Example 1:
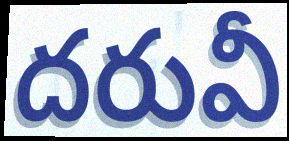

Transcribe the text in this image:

దరువీ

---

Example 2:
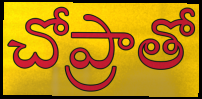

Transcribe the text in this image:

చోప్రాతో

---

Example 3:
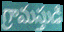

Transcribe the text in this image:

గ్రామస్తుడి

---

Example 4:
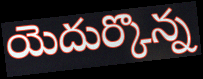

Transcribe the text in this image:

యెదుర్కొన్న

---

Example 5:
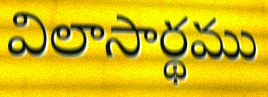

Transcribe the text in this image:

విలాసార్థము